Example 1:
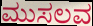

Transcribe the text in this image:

ಮುಸಲವ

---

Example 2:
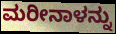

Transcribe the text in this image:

ಮರೀನಾಳನ್ನು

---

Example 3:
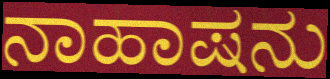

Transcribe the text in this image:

ನಾಹಾಷನು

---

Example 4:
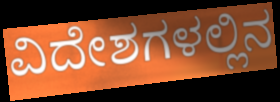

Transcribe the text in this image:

ವಿದೇಶಗಳಲ್ಲಿನ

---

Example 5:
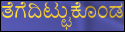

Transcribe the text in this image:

ತೆಗೆದಿಟ್ಟುಕೊಂಡ